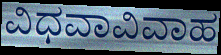
ವಿಧವಾವಿವಾಹ